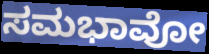
ಸಮಭಾವೋ